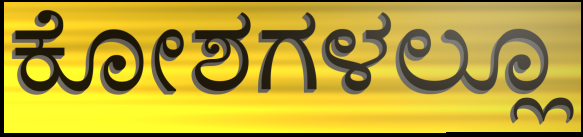
ಕೋಶಗಳಲ್ಲೂ